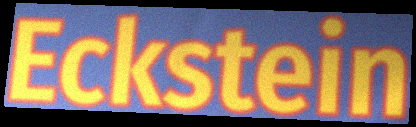
Eckstein